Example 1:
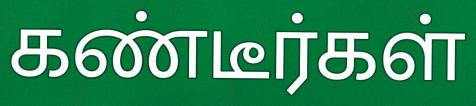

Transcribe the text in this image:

கண்டீர்கள்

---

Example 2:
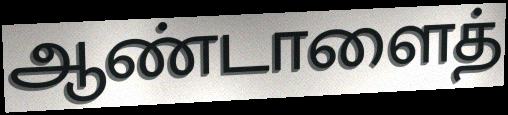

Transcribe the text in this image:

ஆண்டாளைத்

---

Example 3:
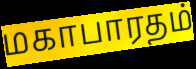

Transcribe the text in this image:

மகாபாரதம்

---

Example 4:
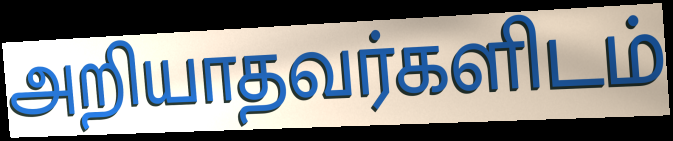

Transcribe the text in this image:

அறியாதவர்களிடம்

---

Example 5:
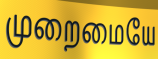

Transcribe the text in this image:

முறைமையே